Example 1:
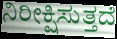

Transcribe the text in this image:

ನಿರೀಕ್ಷಿಸುತ್ತದೆ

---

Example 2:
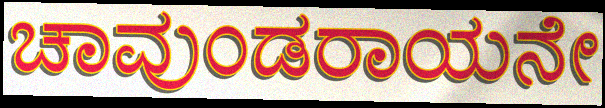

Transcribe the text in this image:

ಚಾವುಂಡರಾಯನೇ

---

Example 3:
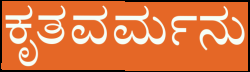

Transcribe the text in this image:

ಕೃತವರ್ಮನು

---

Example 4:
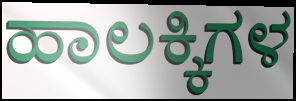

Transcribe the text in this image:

ಹಾಲಕ್ಕಿಗಳ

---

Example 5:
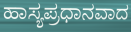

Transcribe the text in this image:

ಹಾಸ್ಯಪ್ರಧಾನವಾದ